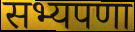
सभ्यपणा